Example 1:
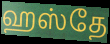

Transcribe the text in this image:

ஹஸ்தே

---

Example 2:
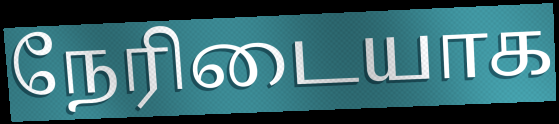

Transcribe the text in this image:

நேரிடையாக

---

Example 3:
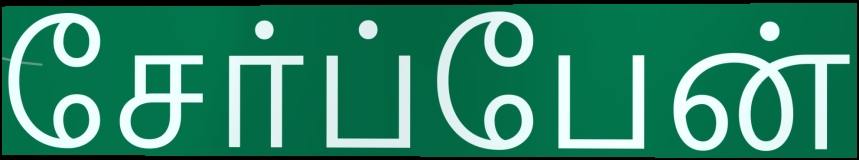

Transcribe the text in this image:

சேர்ப்பேன்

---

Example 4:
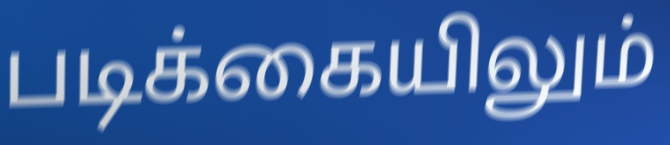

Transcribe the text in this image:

படிக்கையிலும்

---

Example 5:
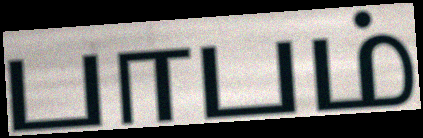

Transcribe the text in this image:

பாபம்